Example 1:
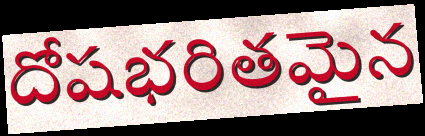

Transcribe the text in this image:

దోషభరితమైన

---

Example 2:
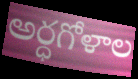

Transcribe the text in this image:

అర్ధగోళాల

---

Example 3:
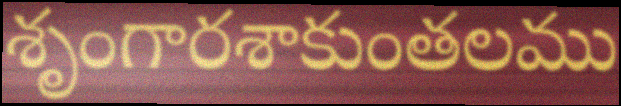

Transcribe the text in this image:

శృంగారశాకుంతలము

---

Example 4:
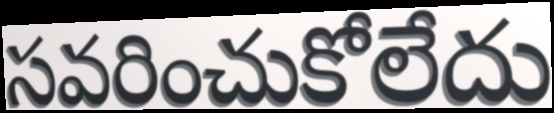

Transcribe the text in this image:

సవరించుకోలేదు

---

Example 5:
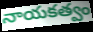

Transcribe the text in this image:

నాయకత్వం